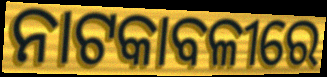
ନାଟକାବଳୀରେ